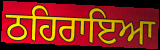
ਠਹਿਰਾਇਆ